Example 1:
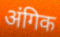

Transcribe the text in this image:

अंगिक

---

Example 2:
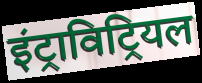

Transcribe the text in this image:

इंट्राविट्रियल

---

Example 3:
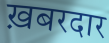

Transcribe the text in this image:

ख़बरदार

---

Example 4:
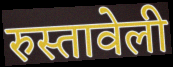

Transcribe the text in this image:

रुस्तावेली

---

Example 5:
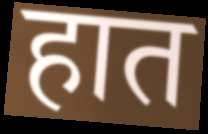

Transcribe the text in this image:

हात